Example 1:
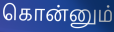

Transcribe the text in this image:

கொன்னும்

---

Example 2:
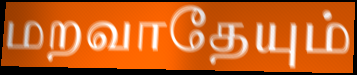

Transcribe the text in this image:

மறவாதேயும்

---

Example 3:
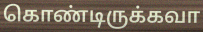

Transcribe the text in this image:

கொண்டிருக்கவா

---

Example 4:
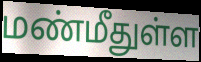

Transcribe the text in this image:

மண்மீதுள்ள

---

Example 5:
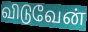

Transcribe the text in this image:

விடுவேன்